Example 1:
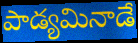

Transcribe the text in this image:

పాడ్యమినాడే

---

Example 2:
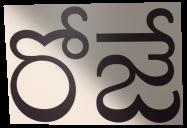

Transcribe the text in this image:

రోజే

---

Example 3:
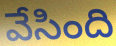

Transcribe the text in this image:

వేసింది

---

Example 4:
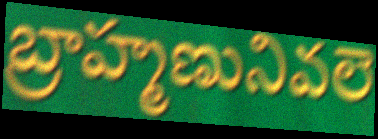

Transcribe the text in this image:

బ్రాహ్మణునివలె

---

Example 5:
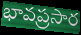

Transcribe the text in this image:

భావప్రసార